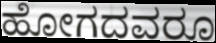
ಹೋಗದವರೂ